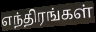
எந்திரங்கள்